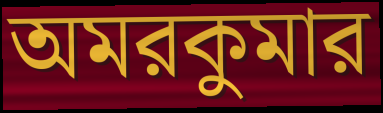
অমরকুমার